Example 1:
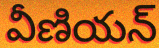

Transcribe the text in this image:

వీణియన్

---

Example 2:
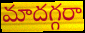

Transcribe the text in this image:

మాదగ్గరా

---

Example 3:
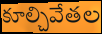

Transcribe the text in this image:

కూల్చివేతల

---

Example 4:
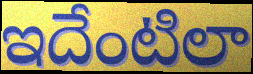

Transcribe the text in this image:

ఇదేంటిలా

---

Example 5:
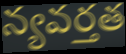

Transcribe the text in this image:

న్యవర్తత